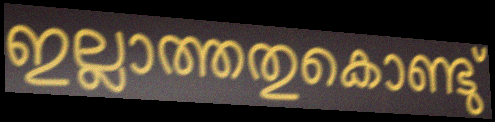
ഇല്ലാത്തതുകൊണ്ടു്